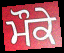
ਮੌਕੇ